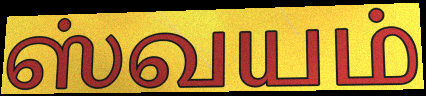
ஸ்வயம்